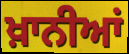
ਖ਼ਾਨੀਆਂ